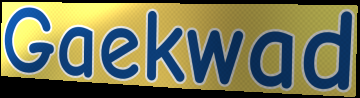
Gaekwad